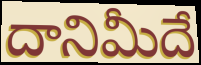
దానిమీదే